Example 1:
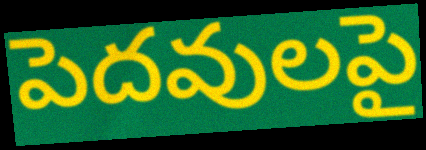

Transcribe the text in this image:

పెదవులపై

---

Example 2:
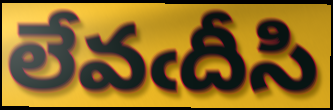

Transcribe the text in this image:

లేవఁదీసి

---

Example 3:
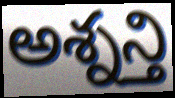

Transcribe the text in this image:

అశ్నన్తి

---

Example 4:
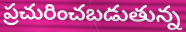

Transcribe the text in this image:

ప్రచురించబడుతున్న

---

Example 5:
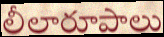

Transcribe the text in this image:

లీలారూపాలు